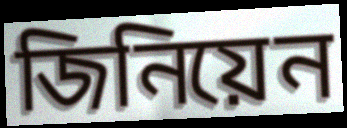
জিনিয়েন